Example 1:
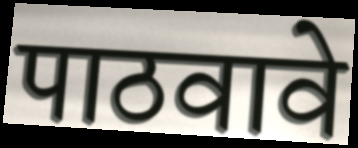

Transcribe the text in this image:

पाठवावे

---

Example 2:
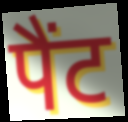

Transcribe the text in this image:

पैंट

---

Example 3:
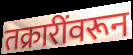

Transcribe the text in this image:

तक्रारींवरून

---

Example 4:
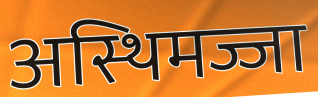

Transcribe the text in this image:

अस्थिमज्जा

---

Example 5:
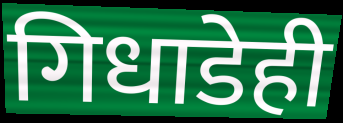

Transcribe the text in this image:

गिधाडेही